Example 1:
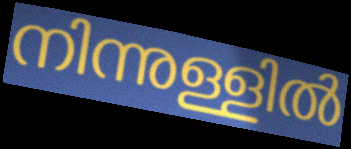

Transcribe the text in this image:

നിന്നുള്ളിൽ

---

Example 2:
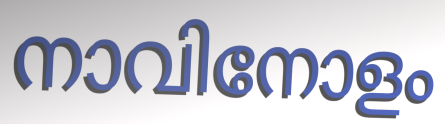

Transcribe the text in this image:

നാവിനോളം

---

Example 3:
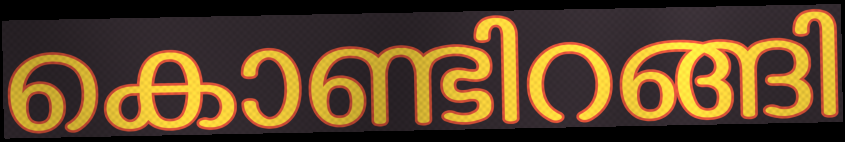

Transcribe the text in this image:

കൊണ്ടിറങ്ങി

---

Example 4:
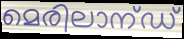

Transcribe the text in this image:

മെരിലാന്ഡ്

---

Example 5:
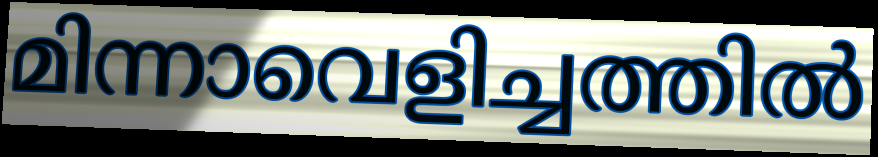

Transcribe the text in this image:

മിന്നാവെളിച്ചത്തിൽ